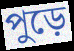
পুড়ে